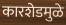
कारशेडमुळे